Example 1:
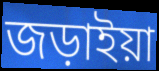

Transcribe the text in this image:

জড়াইয়া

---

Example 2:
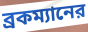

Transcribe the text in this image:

ব্রকম্যানের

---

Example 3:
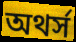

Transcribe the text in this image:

অথর্স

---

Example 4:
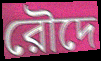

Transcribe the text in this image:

রৌদে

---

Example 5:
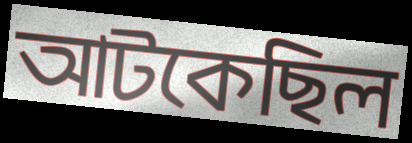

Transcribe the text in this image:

আটকেছিল